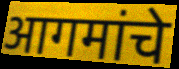
आगमांचे